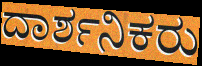
ದಾರ್ಶನಿಕರು